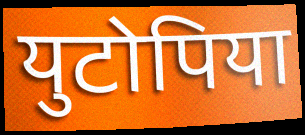
युटोपिया